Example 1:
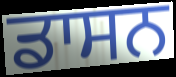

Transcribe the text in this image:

ਡਾਸਨ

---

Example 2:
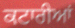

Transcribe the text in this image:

ਕਟਾਰੀਆਂ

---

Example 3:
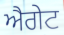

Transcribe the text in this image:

ਐਗੇਟ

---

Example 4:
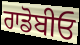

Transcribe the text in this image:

ਰਾਡੋਬੀਓ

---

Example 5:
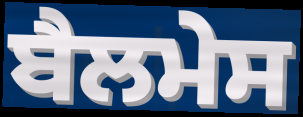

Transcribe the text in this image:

ਬੈਲਮੇਸ